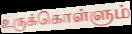
உருக்கொள்ளும்